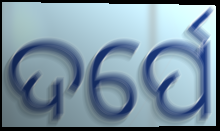
ଦର୍ପେ